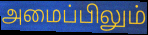
அமைப்பிலும்